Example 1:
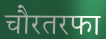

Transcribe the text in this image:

चौरतरफा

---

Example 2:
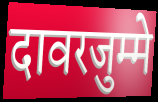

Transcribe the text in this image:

दावरजुम्मे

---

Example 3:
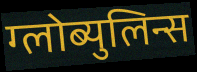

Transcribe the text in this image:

ग्लोब्युलिन्स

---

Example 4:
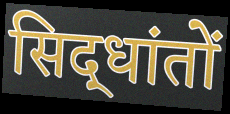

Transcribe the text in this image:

सिद्धांतों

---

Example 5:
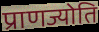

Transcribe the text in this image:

प्राणज्योति